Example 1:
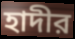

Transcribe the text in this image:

হাদীর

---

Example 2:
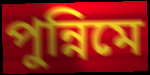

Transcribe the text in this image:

পুন্নিমে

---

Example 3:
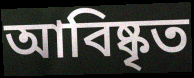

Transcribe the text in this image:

আবিষ্কৃত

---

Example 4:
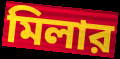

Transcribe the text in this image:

মিলার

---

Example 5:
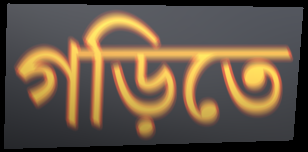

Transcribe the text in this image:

গড়িতে